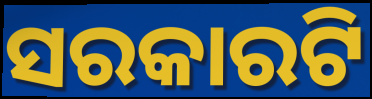
ସରକାରଟି